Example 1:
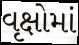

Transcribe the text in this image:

વૃક્ષોમાં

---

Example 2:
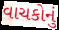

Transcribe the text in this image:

વાચકોનું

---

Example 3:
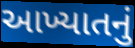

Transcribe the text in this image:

આખ્યાતનું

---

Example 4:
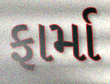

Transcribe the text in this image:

ફાર્મા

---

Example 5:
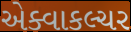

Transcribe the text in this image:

એક્વાકલ્ચર